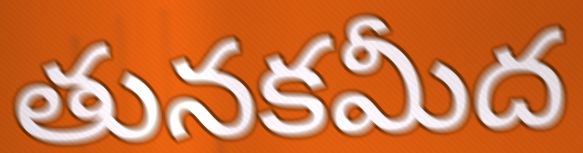
తునకమీద